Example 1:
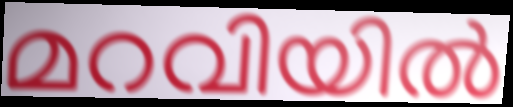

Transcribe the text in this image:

മറവിയിൽ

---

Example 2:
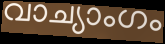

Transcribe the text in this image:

വാച്യാംഗം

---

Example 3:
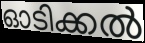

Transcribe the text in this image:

ഓടിക്കൽ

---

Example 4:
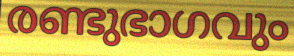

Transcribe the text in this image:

രണ്ടുഭാഗവും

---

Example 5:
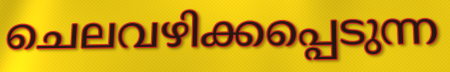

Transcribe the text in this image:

ചെലവഴിക്കപ്പെടുന്ന